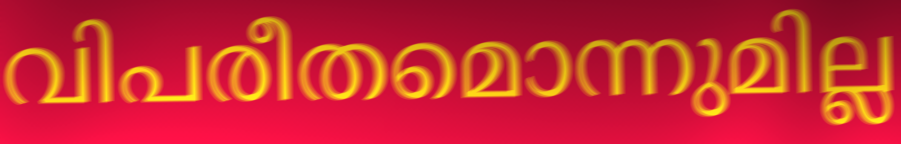
വിപരീതമൊന്നുമില്ല